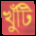
খুঁটি